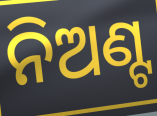
ନିଅଣ୍ଟ